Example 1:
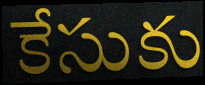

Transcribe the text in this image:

కేసుకు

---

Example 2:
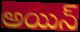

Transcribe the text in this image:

అయిన్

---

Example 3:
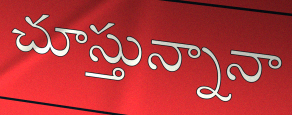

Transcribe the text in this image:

చూస్తున్నానా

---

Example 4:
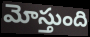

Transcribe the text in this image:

మోస్తుంది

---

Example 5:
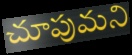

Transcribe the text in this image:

చూపుమని